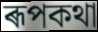
ৰূপকথা